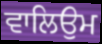
ਵਾਲਿਉਮ